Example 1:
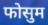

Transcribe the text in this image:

फोसुम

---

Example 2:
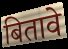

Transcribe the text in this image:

बितावे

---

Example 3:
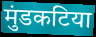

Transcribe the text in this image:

मुंडकटिया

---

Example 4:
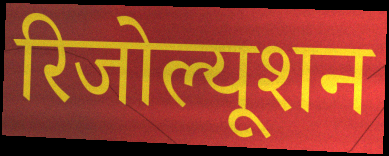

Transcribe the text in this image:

रिजोल्‍यूशन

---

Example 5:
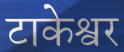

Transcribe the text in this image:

टाकेश्वर